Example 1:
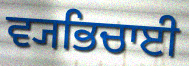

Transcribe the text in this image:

ਵ੍ਯਭਿਚਾਈ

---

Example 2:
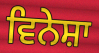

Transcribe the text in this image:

ਵਿਨੇਸ਼ਾ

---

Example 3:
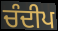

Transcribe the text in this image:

ਚੰਦੀਪ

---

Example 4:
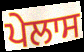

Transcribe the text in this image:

ਪੇਲਾਸ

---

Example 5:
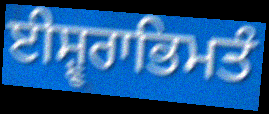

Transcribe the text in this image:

ਈਸ਼੍ਵਰਾਭਿਮਤੰ